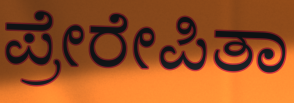
ಪ್ರೇರೇಪಿತಾ